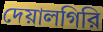
দেয়ালগিরি